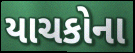
યાચકોના